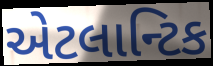
એટલાન્ટિક